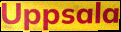
Uppsala